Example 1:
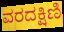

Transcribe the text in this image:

ವರದಕ್ಷಿಣಿ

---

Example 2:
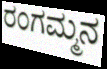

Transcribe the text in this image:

ರಂಗಮ್ಮನ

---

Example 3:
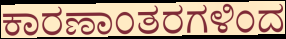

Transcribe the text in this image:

ಕಾರಣಾಂತರಗಳಿಂದ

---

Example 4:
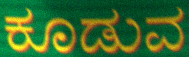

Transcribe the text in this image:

ಕೂಡುವ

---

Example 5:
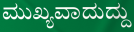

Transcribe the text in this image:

ಮುಖ್ಯವಾದುದ್ದು